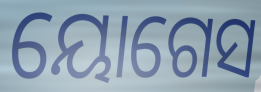
ୟୋଗେସ